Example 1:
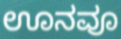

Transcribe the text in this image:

ಊನವೂ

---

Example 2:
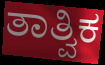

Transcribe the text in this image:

ತಾತ್ವಿಕ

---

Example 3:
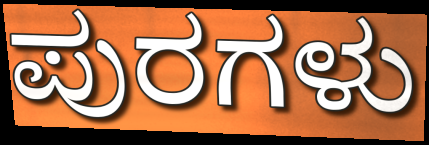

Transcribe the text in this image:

ಪುರಗಳು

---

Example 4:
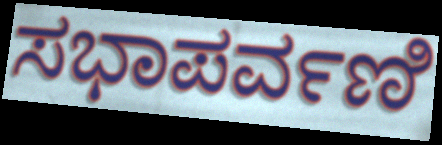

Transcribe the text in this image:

ಸಭಾಪರ್ವಣಿ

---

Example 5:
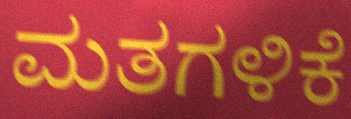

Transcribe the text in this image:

ಮತಗಳಿಕೆ